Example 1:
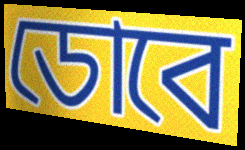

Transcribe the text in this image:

ডোবে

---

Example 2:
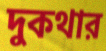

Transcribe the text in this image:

দুকথার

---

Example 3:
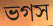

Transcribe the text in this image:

ভগস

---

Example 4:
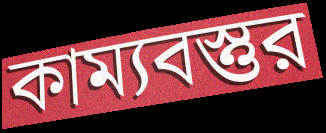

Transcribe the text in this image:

কাম্যবস্তুর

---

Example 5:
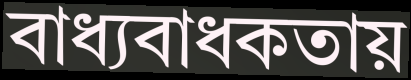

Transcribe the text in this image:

বাধ্যবাধকতায়